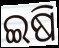
ଇଷି